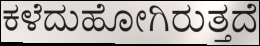
ಕಳೆದುಹೋಗಿರುತ್ತದೆ